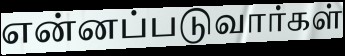
என்னப்படுவார்கள்